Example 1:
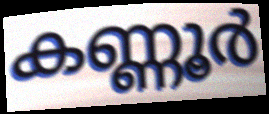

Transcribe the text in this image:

കണ്ണൂർ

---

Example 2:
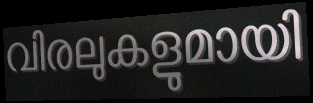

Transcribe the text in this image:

വിരലുകളുമായി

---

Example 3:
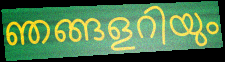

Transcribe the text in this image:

ഞങ്ങളറിയും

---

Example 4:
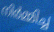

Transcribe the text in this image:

നിർമ്മിച്ച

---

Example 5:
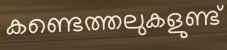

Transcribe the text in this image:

കണ്ടെത്തലുകളുണ്ട്